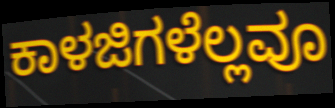
ಕಾಳಜಿಗಳೆಲ್ಲವೂ